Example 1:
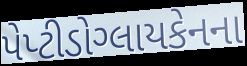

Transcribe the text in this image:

પેપ્ટીડોગ્લાયકેનના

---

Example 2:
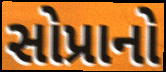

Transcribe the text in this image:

સોપ્રાનો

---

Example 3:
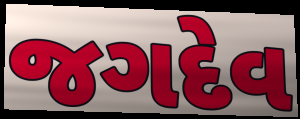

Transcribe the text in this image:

જગદેવ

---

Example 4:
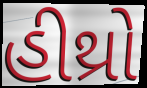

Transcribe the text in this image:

હીથ્રો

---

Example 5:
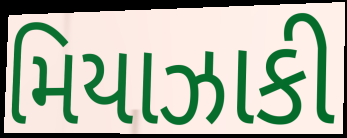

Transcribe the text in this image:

મિયાઝાકી